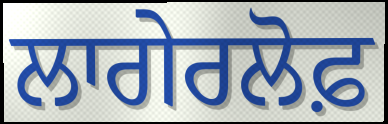
ਲਾਗੇਰਲੋਫ਼